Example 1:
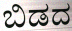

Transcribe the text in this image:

ಬಿಡದ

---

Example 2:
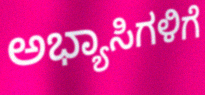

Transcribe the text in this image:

ಅಭ್ಯಾಸಿಗಳಿಗೆ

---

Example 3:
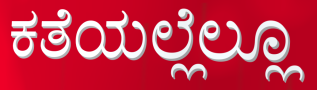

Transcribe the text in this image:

ಕತೆಯಲ್ಲೆಲ್ಲೂ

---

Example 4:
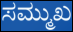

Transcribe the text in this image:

ಸಮ್ಮುಖ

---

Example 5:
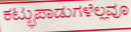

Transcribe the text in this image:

ಕಟ್ಟುಪಾಡುಗಳೆಲ್ಲವೂ